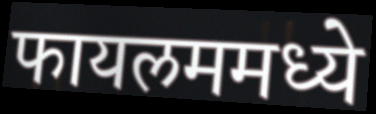
फायलममध्ये